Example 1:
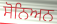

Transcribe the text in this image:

ਸੋਨਿਅਨ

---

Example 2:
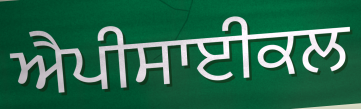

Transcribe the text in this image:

ਐਪੀਸਾਈਕਲ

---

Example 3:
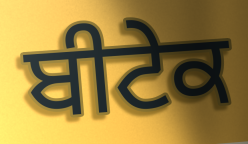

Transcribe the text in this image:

ਬੀਟੇਕ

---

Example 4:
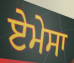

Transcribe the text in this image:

ਏਮੇਸਾ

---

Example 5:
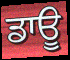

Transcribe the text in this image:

ਡਾਊ